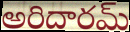
అరిదారమ్